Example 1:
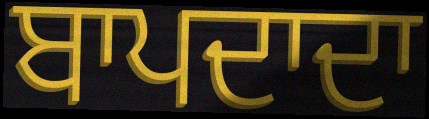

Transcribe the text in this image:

ਬਾਪਦਾਦਾ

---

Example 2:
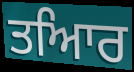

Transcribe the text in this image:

ਤਆਿਰ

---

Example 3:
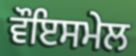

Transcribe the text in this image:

ਵੌਇਸਮੇਲ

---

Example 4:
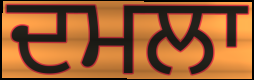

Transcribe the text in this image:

ਦਮਲਾ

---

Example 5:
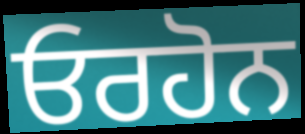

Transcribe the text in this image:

ਓਰਹੋਨ